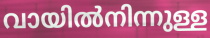
വായിൽനിന്നുള്ള